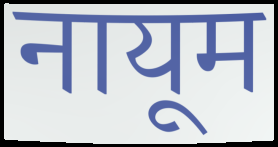
नायूम